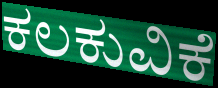
ಕಲಕುವಿಕೆ